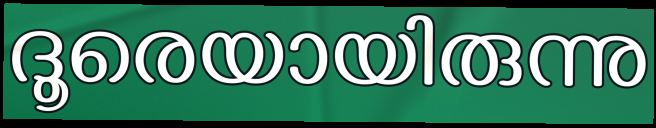
ദൂരെയായിരുന്നു